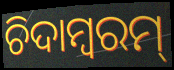
ଚିଦାମ୍ବରମ୍